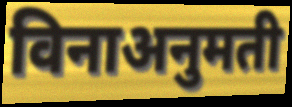
विनाअनुमती